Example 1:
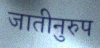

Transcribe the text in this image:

जातीनुरुप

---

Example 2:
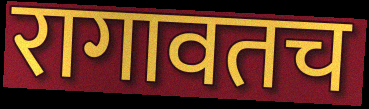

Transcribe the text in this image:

रागावतच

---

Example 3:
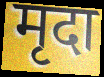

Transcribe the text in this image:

मृदा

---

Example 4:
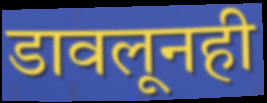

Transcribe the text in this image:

डावलूनही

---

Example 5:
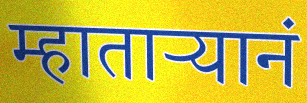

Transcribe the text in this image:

म्हाताऱ्यानं